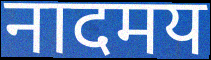
नादमय